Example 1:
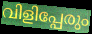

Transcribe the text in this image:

വിളിപ്പേരും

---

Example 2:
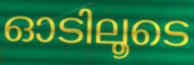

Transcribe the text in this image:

ഓടിലൂടെ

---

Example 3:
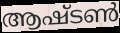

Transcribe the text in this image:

ആഷ്ടൺ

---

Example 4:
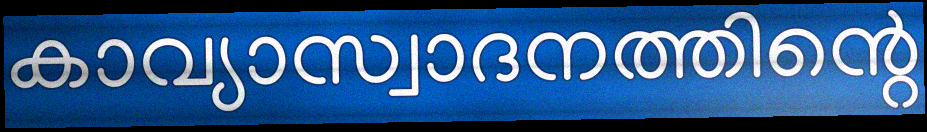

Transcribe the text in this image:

കാവ്യാസ്വാദനത്തിന്റെ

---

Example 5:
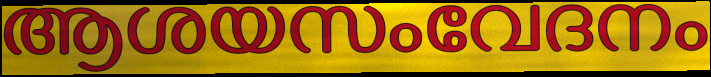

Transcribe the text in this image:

ആശയസംവേദനം